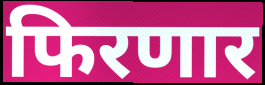
फिरणार